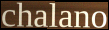
chalano